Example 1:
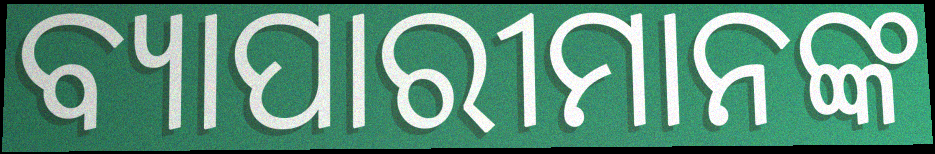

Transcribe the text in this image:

ବ୍ୟାପାରୀମାନଙ୍କ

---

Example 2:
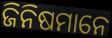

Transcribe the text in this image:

ଜିନିଷମାନେ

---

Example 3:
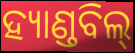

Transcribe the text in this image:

ହ୍ୟାଣ୍ଡବିଲ୍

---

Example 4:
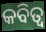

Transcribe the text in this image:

କବିତ୍ବ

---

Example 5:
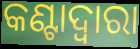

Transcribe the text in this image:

କଣ୍ଟାଦ୍ୱାରା